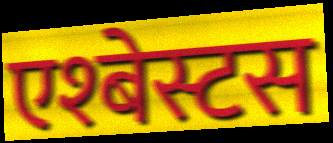
एश्बेस्टस